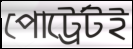
পোর্ট্রেটই